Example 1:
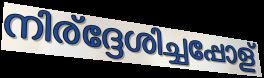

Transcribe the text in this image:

നിര്ദ്ദേശിച്ചപ്പോള്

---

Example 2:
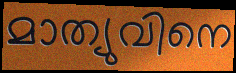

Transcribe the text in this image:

മാത്യുവിനെ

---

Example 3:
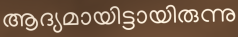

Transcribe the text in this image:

ആദ്യമായിട്ടായിരുന്നു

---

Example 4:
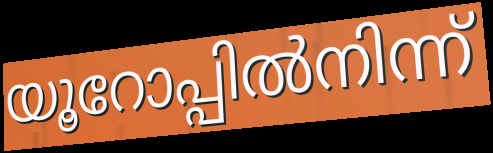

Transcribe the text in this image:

യൂറോപ്പിൽനിന്ന്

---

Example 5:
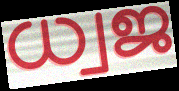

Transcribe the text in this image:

ധ്വജ